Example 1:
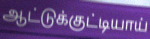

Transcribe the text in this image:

ஆட்டுக்குட்டியாய்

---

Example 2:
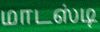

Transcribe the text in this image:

மாடஸ்டி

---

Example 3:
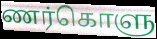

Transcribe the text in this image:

ணர்கொளு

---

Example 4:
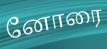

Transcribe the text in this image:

னோரை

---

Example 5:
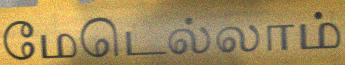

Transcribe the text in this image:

மேடெல்லாம்